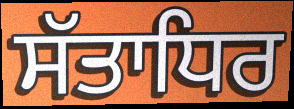
ਸੱਤਾਧਿਰ